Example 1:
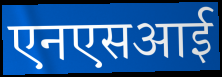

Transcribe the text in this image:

एनएसआई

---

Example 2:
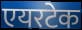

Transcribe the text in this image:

एयरटेक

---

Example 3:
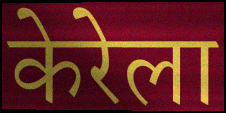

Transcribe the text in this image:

केरेला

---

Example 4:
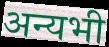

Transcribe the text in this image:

अन्यभी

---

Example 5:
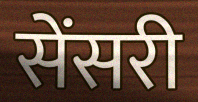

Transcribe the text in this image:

सेंसरी